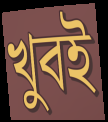
খুবই